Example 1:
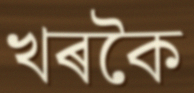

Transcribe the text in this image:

খৰকৈ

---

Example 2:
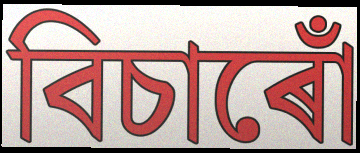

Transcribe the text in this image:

বিচাৰোঁ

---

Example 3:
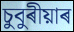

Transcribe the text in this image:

চুবুৰীয়াৰ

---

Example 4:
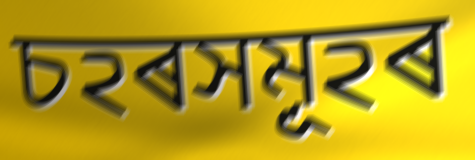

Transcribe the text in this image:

চহৰসমূহৰ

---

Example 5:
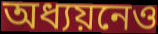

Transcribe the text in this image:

অধ্যয়নেও